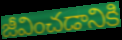
జీవించడానికి